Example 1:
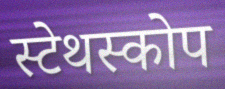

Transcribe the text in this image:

स्टेथस्कोप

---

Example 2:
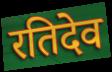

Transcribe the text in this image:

रतिदेव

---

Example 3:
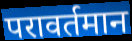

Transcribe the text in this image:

परावर्तमान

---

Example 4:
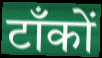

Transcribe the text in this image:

टाँकों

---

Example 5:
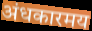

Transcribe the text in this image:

अंधकारमय